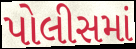
પોલીસમાં